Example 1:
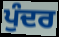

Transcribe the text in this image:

ਪੁੰਦਰ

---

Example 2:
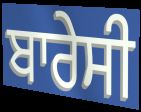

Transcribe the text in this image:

ਬਾਰੇਸੀ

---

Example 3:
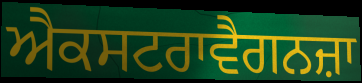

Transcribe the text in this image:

ਐਕਸਟਰਾਵੈਗਨਜ਼ਾ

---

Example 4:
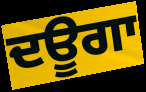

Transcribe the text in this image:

ਦਊਗਾ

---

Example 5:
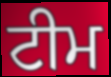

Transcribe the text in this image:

ਟੀਮ